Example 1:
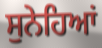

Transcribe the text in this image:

ਸੁਨੇਹਿਆਂ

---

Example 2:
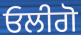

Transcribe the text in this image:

ਓਲੀਗੋ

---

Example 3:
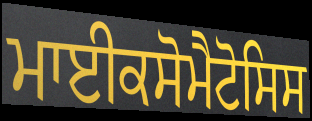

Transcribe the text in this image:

ਮਾਈਕਸੋਮੈਟੋਸਿਸ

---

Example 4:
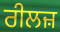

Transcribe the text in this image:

ਰੀਲਜ਼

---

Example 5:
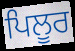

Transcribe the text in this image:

ਪਿਲੂਰ